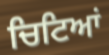
ਚਿਟਿਆਂ